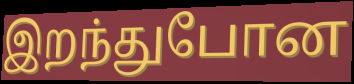
இறந்துபோன